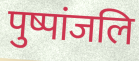
पुष्पांजलि